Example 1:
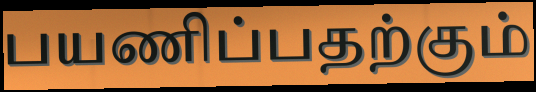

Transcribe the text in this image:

பயணிப்பதற்கும்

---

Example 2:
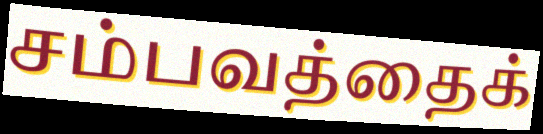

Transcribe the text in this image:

சம்பவத்தைக்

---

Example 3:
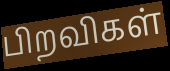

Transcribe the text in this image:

பிறவிகள்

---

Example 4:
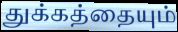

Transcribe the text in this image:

துக்கத்தையும்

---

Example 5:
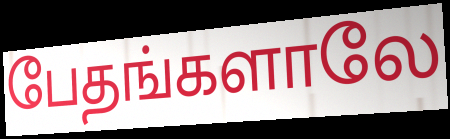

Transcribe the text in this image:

பேதங்களாலே